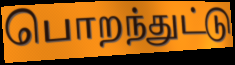
பொறந்துட்டு